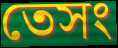
তেসং